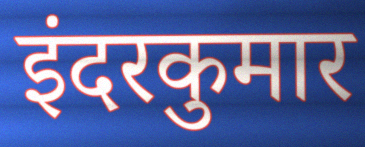
इंदरकुमार